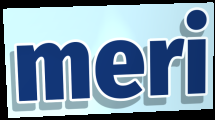
meri